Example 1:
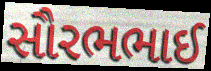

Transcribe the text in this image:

સૌરભભાઈ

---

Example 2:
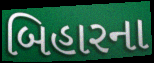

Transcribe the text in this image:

બિહારના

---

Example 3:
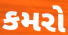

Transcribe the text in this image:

કમરો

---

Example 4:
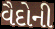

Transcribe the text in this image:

વૈદોની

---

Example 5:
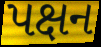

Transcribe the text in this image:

પક્ષન